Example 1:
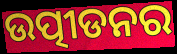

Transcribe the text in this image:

ଉତ୍ପୀଡନର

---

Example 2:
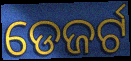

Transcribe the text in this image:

ଡେଜର୍ଟ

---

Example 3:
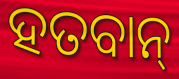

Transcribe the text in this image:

ହତବାନ୍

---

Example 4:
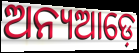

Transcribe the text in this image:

ଅନ୍ୟଆଡ଼େ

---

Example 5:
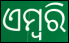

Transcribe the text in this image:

ଏମ୍ବରି